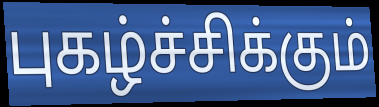
புகழ்ச்சிக்கும்